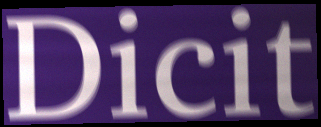
Dicit